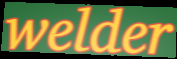
welder